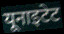
यूनाइटेट